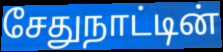
சேதுநாட்டின்